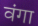
वंगा